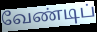
வேண்டிப்